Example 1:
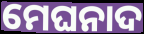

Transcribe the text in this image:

ମେଘନାଦ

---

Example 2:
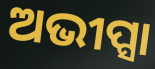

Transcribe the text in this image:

ଅଭୀପ୍ସା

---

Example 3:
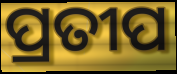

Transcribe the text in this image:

ପ୍ରତୀପ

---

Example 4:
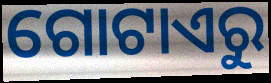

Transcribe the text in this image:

ଗୋଟାଏରୁ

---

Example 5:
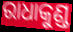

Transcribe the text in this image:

ରାଧାକୁଣ୍ଡ